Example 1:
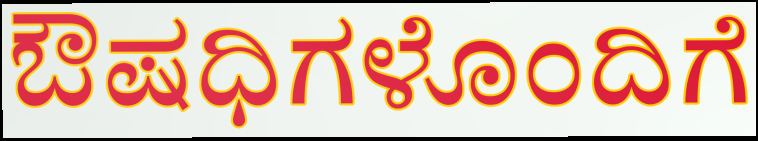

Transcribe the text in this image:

ಔಷಧಿಗಳೊಂದಿಗೆ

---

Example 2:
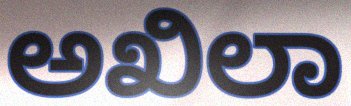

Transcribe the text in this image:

ಅಖಿಲಾ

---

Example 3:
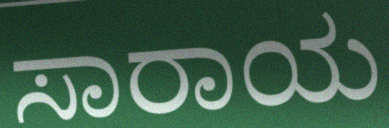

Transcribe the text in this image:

ಸಾರಾಯ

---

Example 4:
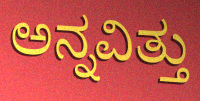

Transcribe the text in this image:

ಅನ್ನವಿತ್ತು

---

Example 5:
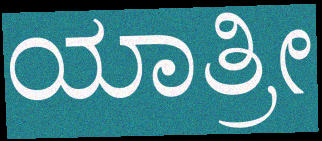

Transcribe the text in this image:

ಯಾತ್ರೀ